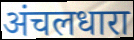
अंचलधारा